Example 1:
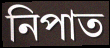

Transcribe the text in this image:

নিপাত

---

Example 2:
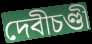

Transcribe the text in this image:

দেবীচণ্ডী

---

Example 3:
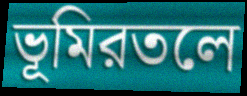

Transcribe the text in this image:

ভূমিরতলে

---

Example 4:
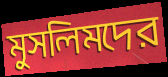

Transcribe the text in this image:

মুসলিমদের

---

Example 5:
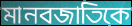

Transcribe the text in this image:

মানবজাতিকে